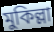
মুকিল্লা